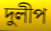
দুলীপ